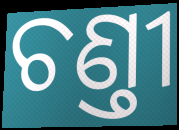
ଚଣ୍ତୀ